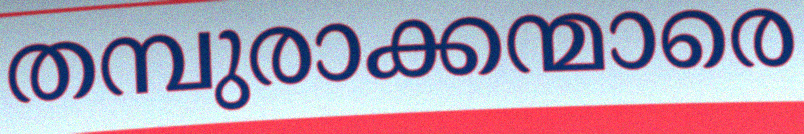
തമ്പുരാക്കന്മാരെ